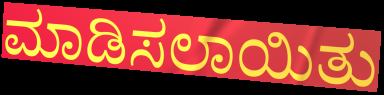
ಮಾಡಿಸಲಾಯಿತು